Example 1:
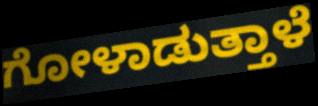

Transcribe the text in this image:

ಗೋಳಾಡುತ್ತಾಳೆ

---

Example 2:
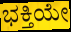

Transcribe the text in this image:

ಭಕ್ತಿಯೇ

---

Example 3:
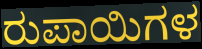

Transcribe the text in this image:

ರುಪಾಯಿಗಳ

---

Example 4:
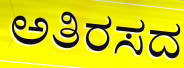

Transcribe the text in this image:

ಅತಿರಸದ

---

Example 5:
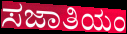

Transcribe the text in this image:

ಸಜಾತಿಯಂ